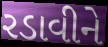
રડાવીને